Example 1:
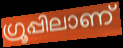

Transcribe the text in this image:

ഗ്രൂപ്പിലാണ്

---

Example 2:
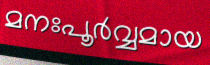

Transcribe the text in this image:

മനഃപൂർവ്വമായ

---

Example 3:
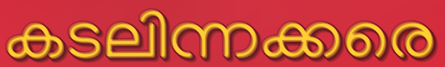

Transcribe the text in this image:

കടലിന്നക്കരെ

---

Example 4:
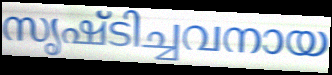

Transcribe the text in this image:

സൃഷ്ടിച്ചവനായ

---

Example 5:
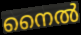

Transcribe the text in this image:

നൈൽ